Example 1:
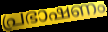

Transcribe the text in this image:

പ്രഭാഷണം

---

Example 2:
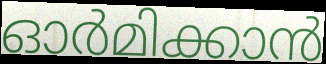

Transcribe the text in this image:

ഓർമിക്കാൻ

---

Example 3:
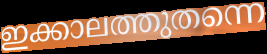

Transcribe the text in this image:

ഇക്കാലത്തുതന്നെ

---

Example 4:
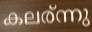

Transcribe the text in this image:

കലര്ന്നു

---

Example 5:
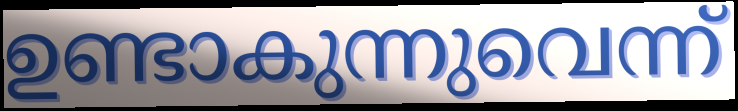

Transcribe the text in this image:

ഉണ്ടാകുന്നുവെന്ന്